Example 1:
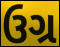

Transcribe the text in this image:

ઉગ્ર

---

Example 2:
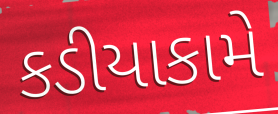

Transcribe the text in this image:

કડીયાકામે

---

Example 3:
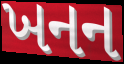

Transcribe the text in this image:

ખનન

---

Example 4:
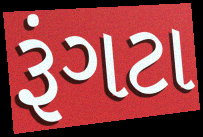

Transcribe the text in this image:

રૂંગટા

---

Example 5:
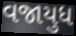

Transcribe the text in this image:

વજાયુધ